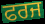
ਫਰਜ